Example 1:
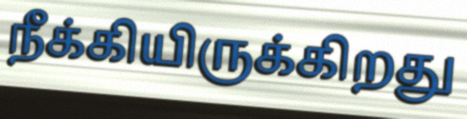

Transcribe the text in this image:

நீக்கியிருக்கிறது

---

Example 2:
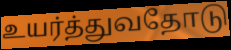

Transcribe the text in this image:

உயர்த்துவதோடு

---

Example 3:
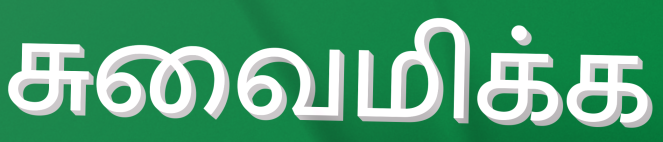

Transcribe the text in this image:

சுவைமிக்க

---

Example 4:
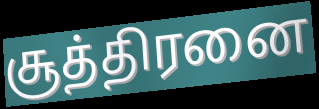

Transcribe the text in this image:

சூத்திரனை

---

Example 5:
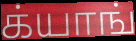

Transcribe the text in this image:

க்யாங்